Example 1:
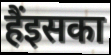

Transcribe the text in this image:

हैंइसका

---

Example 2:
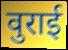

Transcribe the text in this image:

वुराई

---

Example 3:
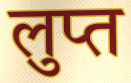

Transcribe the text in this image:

लुप्‍त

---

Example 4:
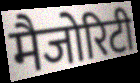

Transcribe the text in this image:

मैजोरिटी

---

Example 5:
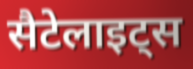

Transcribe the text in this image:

सैटेलाइट्स